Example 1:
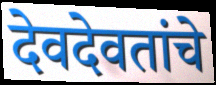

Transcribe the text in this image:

देवदेवतांचे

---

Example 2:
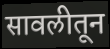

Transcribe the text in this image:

सावलीतून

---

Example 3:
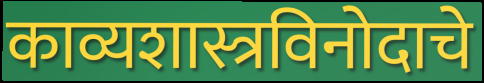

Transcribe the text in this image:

काव्यशास्त्रविनोदाचे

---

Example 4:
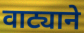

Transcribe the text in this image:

वाट्याने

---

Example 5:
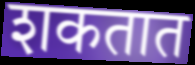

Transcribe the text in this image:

शकतात